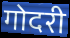
गोदरी